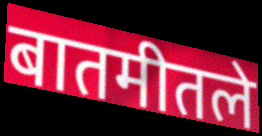
बातमीतले